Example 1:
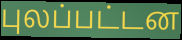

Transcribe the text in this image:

புலப்பட்டன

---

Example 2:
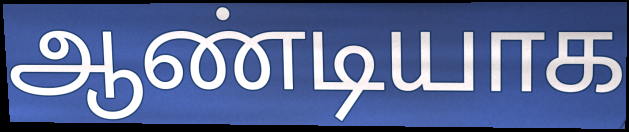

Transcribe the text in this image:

ஆண்டியாக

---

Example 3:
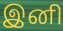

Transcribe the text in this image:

இனி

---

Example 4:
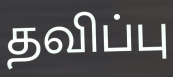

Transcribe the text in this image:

தவிப்பு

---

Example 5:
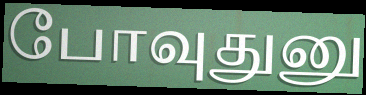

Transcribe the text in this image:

போவுதுனு